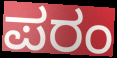
ಪರಂ